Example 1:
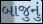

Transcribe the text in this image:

બાજુનું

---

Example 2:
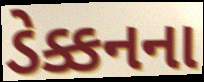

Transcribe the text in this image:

ડેક્કનના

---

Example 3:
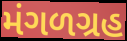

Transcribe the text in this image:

મંગળગ્રહ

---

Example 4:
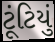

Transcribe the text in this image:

ટૂંટિયું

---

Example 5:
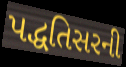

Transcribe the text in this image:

પદ્ધતિસરની